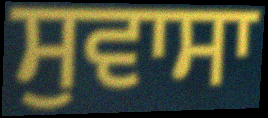
ਸੁਵਾਸਾ